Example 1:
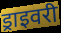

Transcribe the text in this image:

ड्राइवरी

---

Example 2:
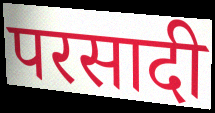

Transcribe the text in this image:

परसादी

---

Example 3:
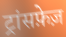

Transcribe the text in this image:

ट्रांसफ़ेज़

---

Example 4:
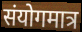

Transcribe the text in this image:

संयोगमात्र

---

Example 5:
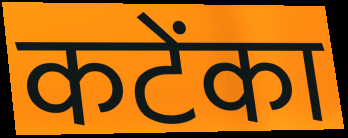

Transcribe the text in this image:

कटेंका